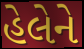
હેલેને